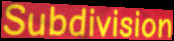
Subdivision